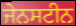
ਜੇਨਸਟੀਨ